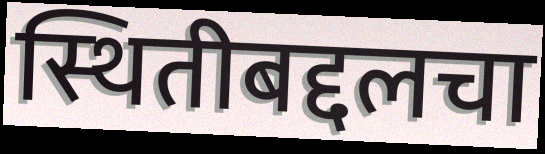
स्थितीबद्दलचा